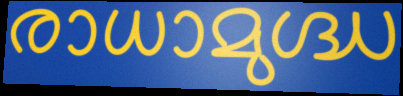
രാധാമുഗ്ദ്ധ